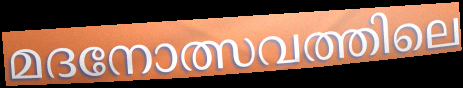
മദനോത്സവത്തിലെ